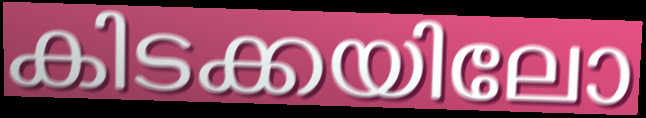
കിടക്കയിലോ